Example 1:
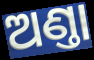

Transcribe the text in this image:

ଅଣ୍ତା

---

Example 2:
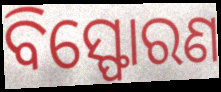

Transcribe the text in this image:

ବିସ୍ଫୋରଣ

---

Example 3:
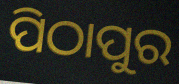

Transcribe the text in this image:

ପିଠାପୁର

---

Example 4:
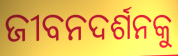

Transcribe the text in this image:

ଜୀବନଦର୍ଶନକୁ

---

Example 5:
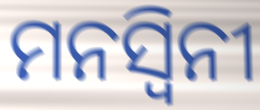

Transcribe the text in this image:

ମନସ୍ୱିନୀ